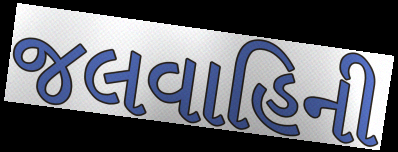
જલવાહિની